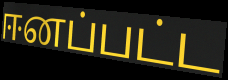
ஈனப்பட்ட